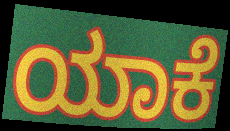
ಯಾಕೆ